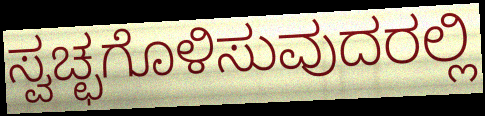
ಸ್ವಚ್ಛಗೊಳಿಸುವುದರಲ್ಲಿ